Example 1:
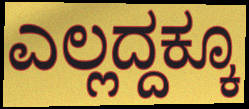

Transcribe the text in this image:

ಎಲ್ಲದ್ದಕ್ಕೂ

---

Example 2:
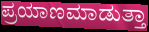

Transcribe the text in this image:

ಪ್ರಯಾಣಮಾಡುತ್ತಾ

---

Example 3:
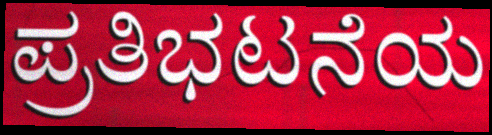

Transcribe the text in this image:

ಪ್ರತಿಭಟನೆಯ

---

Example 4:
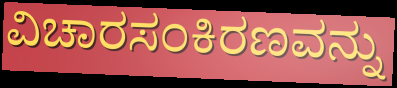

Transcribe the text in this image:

ವಿಚಾರಸಂಕಿರಣವನ್ನು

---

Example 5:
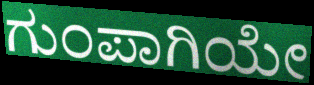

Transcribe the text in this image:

ಗುಂಪಾಗಿಯೇ